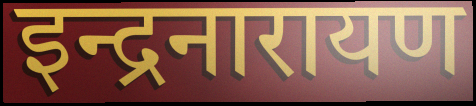
इन्द्रनारायण